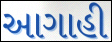
આગાહી